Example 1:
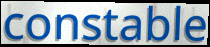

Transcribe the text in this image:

constable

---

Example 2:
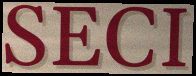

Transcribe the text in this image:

SECI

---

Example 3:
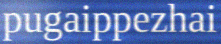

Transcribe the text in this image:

pugaippezhai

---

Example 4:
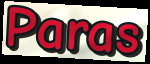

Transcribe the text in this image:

Paras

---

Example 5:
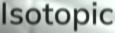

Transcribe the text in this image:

Isotopic